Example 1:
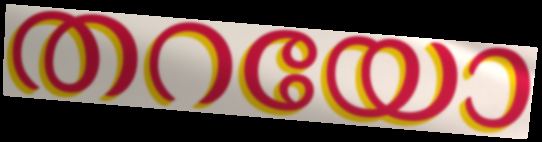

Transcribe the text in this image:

തറയോ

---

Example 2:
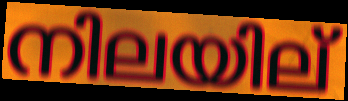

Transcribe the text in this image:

നിലയില്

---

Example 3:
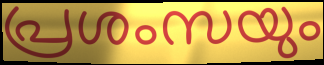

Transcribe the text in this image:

പ്രശംസയും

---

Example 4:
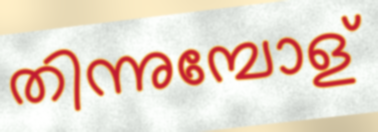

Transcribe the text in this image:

തിന്നുമ്പോള്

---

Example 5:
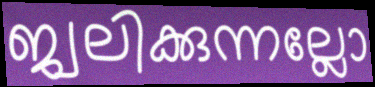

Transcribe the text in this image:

ജ്വലിക്കുന്നല്ലോ